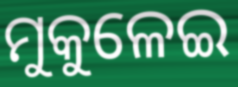
ମୁକୁଳେଇ